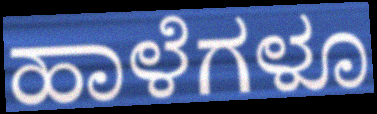
ಹಾಳೆಗಳೂ